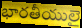
భారతీయులై